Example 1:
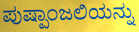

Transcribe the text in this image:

ಪುಷ್ಪಾಂಜಲಿಯನ್ನು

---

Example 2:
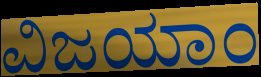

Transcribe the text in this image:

ವಿಜಯಾಂ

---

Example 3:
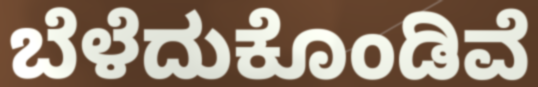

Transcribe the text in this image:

ಬೆಳೆದುಕೊಂಡಿವೆ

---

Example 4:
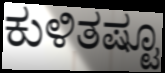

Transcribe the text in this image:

ಕುಳಿತಷ್ಟೂ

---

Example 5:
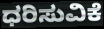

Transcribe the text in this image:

ಧರಿಸುವಿಕೆ